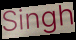
Singh